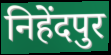
निहेंदपुर